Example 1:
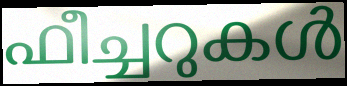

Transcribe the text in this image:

ഫീച്ചറുകൾ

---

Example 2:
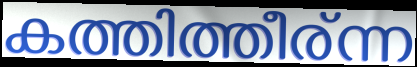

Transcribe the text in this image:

കത്തിത്തീര്ന്ന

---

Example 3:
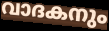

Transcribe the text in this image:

വാദകനും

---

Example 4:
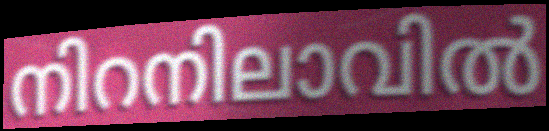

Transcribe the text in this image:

നിറനിലാവിൽ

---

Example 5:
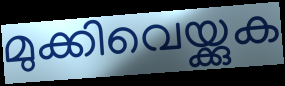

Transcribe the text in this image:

മുക്കിവെയ്ക്കുക